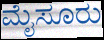
ಮೈಸೂರು